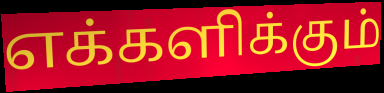
எக்களிக்கும்